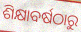
ଶିକ୍ଷାବର୍ଷଠାରୁ